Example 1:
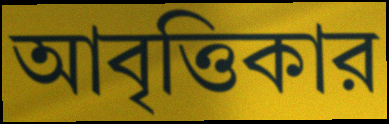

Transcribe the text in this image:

আবৃত্তিকার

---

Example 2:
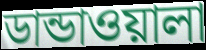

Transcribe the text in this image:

ডান্ডাওয়ালা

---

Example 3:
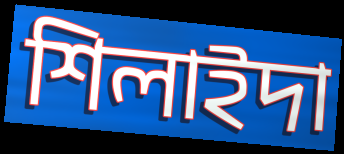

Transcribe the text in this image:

শিলাইদা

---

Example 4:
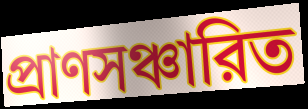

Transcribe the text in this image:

প্রাণসঞ্চারিত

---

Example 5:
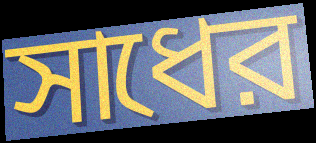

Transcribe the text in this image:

সাধের